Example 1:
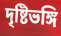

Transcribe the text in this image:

দৃষ্টিভঙ্গি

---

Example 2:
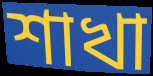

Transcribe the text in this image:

শাখা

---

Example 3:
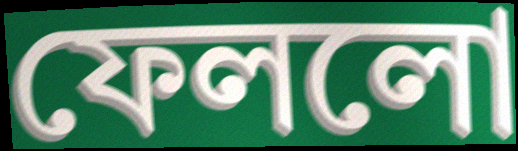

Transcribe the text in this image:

ফেললো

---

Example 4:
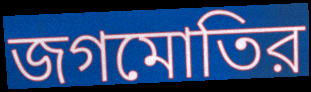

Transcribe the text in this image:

জগমোতির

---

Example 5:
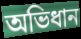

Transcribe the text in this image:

অভিধান